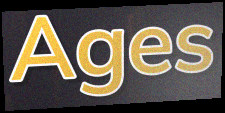
Ages